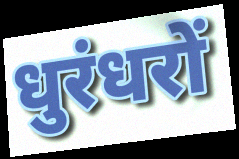
धुरंधरों